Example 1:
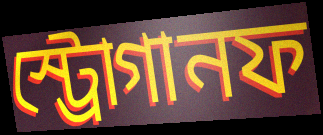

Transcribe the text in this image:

স্ট্রোগানফ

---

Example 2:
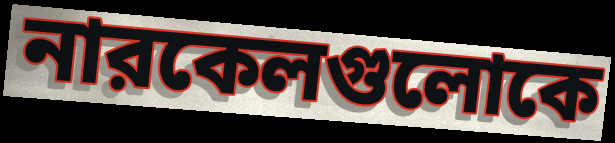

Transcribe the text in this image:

নারকেলগুলোকে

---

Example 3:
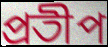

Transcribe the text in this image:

প্রতীপ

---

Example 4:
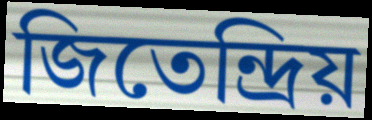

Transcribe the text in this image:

জিতেন্দ্রিয়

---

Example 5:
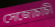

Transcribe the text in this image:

সেজোচাচী